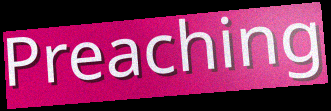
Preaching